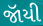
જૉયી